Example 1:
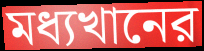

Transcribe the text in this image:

মধ্যখানের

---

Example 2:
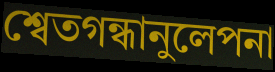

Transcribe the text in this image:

শ্বেতগন্ধানুলেপনা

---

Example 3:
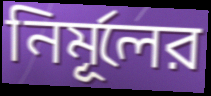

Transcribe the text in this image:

নির্মূলের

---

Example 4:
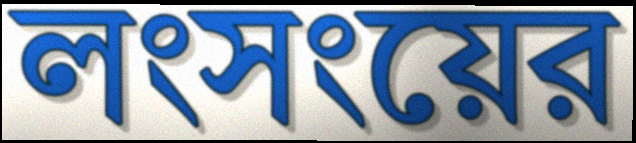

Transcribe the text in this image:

লংসংয়ের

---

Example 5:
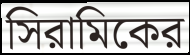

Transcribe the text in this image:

সিরামিকের